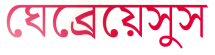
ঘেব্রেয়েসুস